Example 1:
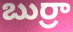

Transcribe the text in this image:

బుర్రా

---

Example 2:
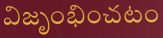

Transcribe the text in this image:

విజృంభించటం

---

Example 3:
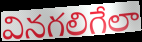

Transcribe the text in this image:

వినగలిగేలా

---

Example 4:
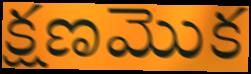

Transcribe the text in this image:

క్షణమొక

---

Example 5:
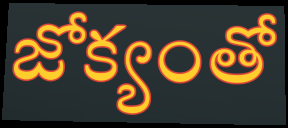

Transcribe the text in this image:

జోక్యంతో